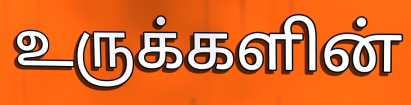
உருக்களின்